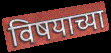
विषयाच्या